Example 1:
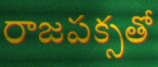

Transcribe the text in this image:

రాజపక్సతో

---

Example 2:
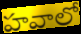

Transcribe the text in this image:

హవాలో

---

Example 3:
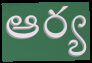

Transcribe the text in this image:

ఆర్య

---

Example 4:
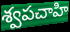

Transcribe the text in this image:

శ్వపచాహి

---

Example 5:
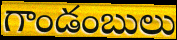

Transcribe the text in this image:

గాండంబులు